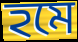
হমে